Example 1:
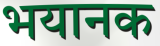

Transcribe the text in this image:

भयानक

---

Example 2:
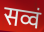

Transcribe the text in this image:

सव्वं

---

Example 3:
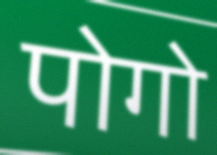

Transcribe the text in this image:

पोगो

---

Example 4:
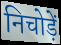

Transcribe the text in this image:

निचोड़ें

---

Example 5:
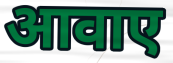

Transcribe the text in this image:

आवाए